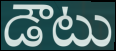
డౌటు